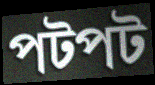
পটপট